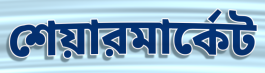
শেয়ারমার্কেট